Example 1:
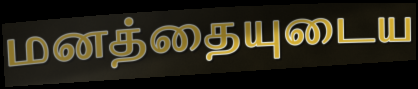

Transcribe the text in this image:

மனத்தையுடைய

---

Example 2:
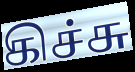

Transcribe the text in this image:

கிச்சு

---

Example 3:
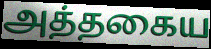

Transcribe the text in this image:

அத்தகைய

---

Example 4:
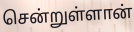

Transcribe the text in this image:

சென்றுள்ளான்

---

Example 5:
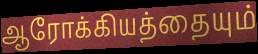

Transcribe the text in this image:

ஆரோக்கியத்தையும்